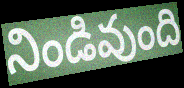
నిండివుంది